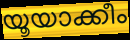
യൂയാക്കീം